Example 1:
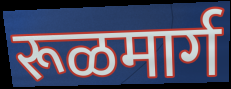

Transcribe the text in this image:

रूळमार्ग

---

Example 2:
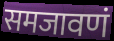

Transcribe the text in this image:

समजावणं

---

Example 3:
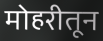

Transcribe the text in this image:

मोहरीतून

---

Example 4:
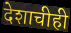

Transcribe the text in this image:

देशाचीही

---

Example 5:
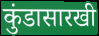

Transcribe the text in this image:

कुंडासारखी